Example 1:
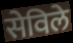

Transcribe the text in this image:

सेविले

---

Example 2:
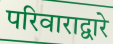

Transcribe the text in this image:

परिवाराद्वारे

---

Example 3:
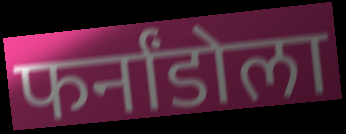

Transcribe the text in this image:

फर्नांडोला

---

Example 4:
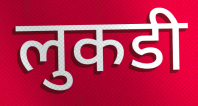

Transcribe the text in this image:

लुकडी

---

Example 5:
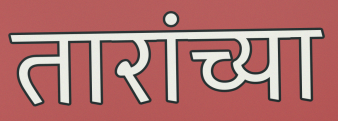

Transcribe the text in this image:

तारांच्या